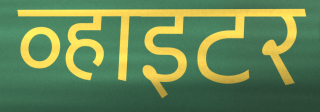
व्हाइटर